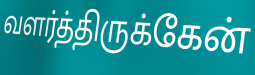
வளர்த்திருக்கேன்